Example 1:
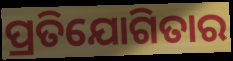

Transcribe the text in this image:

ପ୍ରତିଯୋଗିତାର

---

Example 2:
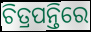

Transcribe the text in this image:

ଚିତ୍ରପନ୍ତିରେ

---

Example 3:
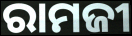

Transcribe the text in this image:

ରାମଜୀ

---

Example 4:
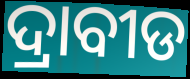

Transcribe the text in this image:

ଦ୍ରାବୀଡ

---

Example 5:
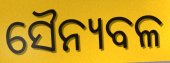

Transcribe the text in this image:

ସୈନ୍ୟବଳ